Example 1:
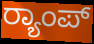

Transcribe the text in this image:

ರ‍್ಯಾಂಪ್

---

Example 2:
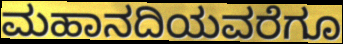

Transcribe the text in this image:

ಮಹಾನದಿಯವರೆಗೂ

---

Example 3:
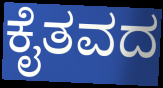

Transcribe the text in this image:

ಕೈತವದ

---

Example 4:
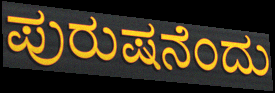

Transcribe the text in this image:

ಪುರುಷನೆಂದು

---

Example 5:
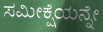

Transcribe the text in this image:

ಸಮೀಕ್ಷೆಯನ್ನೇ